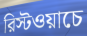
রিস্টওয়াচে